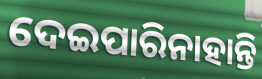
ଦେଇପାରିନାହାନ୍ତି